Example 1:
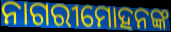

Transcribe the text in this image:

ନାଗରୀମୋହନଙ୍କ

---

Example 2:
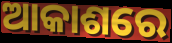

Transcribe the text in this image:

ଆକାଶରେ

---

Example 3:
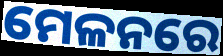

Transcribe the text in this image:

ମେଳନରେ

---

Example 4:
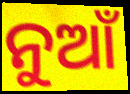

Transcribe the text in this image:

ନୁଆଁ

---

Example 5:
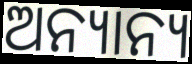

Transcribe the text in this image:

ଅନ୍ୟାନ୍ୟ